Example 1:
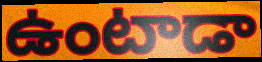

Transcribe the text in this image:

ఉంటాడా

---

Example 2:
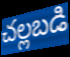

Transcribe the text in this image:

చల్లబడి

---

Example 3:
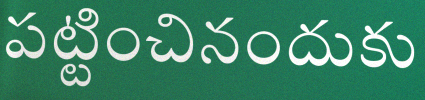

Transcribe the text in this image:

పట్టించినందుకు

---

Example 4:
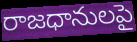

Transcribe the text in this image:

రాజధానులపై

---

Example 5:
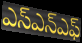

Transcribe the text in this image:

ఎస్ఎన్ఎఫ్